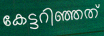
കേട്ടറിഞ്ഞത്